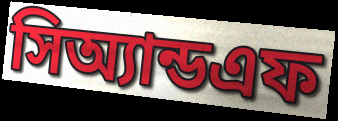
সিঅ্যান্ডএফ